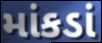
માંકડાં